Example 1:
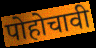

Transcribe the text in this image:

पोहोचावी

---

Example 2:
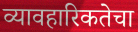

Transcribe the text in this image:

व्यावहारिकतेचा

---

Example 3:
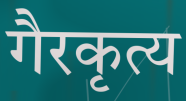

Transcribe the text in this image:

गैरकृत्य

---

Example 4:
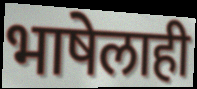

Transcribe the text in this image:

भाषेलाही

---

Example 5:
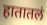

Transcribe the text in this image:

हातातलं